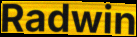
Radwin